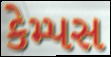
કેમ્પસ